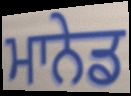
ਮਾਨੇਡ